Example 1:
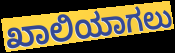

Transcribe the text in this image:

ಖಾಲಿಯಾಗಲು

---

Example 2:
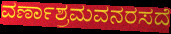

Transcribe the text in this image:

ವರ್ಣಾಶ್ರಮವನರಸದೆ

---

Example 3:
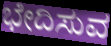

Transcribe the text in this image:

ಭೇದಿಸುವ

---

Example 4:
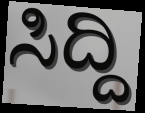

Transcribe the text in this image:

ಸಿದ್ದಿ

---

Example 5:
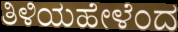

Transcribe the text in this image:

ತಿಳಿಯಹೇಳೆಂದ